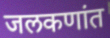
जलकणांत